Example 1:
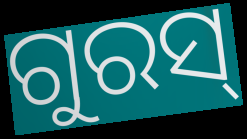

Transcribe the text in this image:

ଗୁରସ୍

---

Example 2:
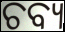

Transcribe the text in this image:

ଚବ୍ୟ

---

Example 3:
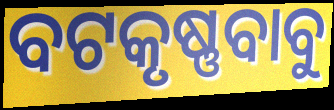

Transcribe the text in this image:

ବଟକୃଷ୍ଣବାବୁ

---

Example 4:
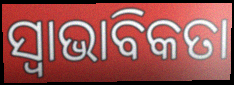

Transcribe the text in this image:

ସ୍ଵାଭାବିକତା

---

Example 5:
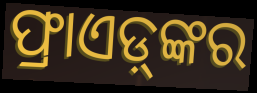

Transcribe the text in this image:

ଫ୍ରାଏଡ଼୍‍ଙ୍କର